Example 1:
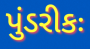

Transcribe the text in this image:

પુંડરીકઃ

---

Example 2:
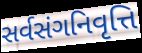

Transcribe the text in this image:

સર્વસંગનિવૃત્તિ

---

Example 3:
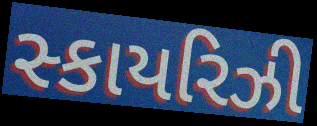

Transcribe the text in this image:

સ્કાયરિઝી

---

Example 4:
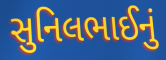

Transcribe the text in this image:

સુનિલભાઈનું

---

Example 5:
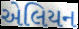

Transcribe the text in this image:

એલિયન